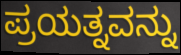
ಪ್ರಯತ್ನವನ್ನು